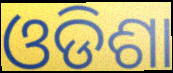
ଓଡିଶା